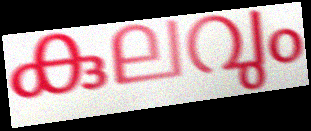
കുലവും